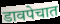
डावपेचात